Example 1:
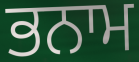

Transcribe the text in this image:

ਭਨਾਮ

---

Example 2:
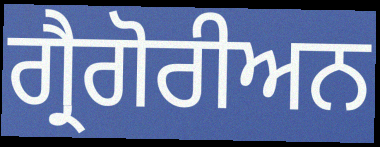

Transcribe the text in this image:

ਗ੍ਰੈਗੋਰੀਅਨ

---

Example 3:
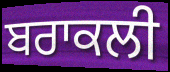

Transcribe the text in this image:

ਬਰਾਕਲੀ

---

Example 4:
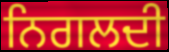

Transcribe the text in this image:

ਨਿਗਲਦੀ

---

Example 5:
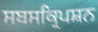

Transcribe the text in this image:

ਸਬਸਕ੍ਰਿਪਸ਼ਨ